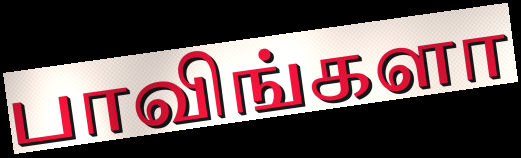
பாவிங்களா